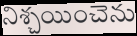
నిశ్చయించెను